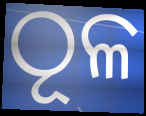
ଠୂଳ